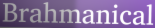
Brahmanical